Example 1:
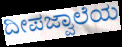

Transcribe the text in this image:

ದೀಪಜ್ವಾಲೆಯ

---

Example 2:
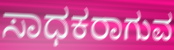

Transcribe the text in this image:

ಸಾಧಕರಾಗುವ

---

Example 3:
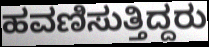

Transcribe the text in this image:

ಹವಣಿಸುತ್ತಿದ್ದರು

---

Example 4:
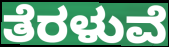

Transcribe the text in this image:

ತೆರಳುವೆ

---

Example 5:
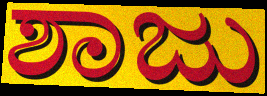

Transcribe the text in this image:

ಶಾಜು